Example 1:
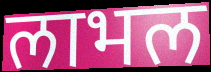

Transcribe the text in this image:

लाभल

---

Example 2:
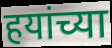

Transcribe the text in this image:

हयांच्या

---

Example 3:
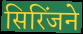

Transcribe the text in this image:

सिरिंजने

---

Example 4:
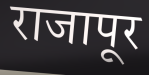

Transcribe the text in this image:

राजापूर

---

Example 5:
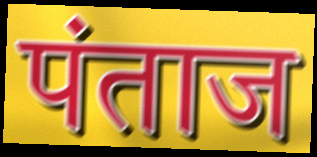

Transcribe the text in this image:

पंताज